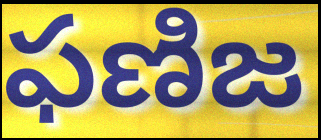
ఫణిజ